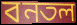
বনতল